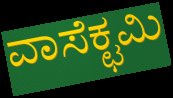
ವಾಸೆಕ್ಟಮಿ